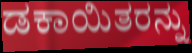
ಡಕಾಯಿತರನ್ನು